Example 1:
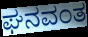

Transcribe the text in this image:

ಘನವಂತ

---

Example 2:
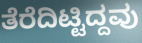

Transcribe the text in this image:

ತೆರೆದಿಟ್ಟಿದ್ದವು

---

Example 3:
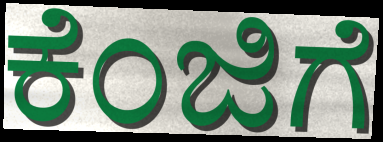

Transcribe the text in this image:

ಕೆಂಜಿಗೆ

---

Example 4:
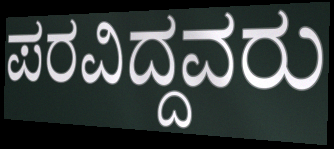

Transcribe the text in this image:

ಪರವಿದ್ದವರು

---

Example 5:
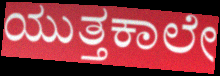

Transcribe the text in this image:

ಯುತ್ತಕಾಲೇ